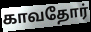
காவதோர்